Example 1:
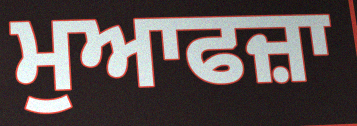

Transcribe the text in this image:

ਮੁਆਫਜ਼ਾ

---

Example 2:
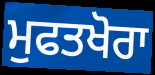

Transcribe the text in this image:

ਮੁਫਤਖੋਰਾ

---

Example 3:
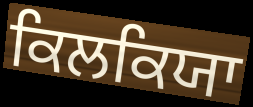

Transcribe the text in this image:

ਕਿਲਕਿਯਾ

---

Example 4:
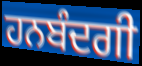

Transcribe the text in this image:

ਹਨਬੰਦਗੀ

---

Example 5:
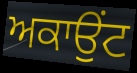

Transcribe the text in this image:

ਅਕਾਉਂਟ